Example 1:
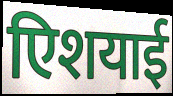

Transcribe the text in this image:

एिशयाई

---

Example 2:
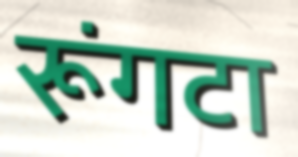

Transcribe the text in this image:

रूंगटा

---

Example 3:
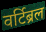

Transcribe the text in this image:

वर्टिब्रल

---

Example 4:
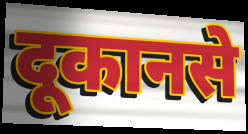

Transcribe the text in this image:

दूकानसे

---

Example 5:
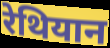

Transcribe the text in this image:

रेथियान